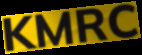
KMRC